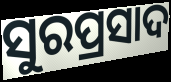
ସୁରପ୍ରସାଦ